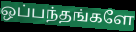
ஒப்பந்தங்களே